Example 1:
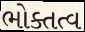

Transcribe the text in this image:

ભોક્તત્વ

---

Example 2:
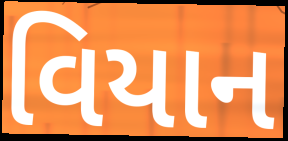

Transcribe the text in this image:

વિયાન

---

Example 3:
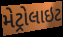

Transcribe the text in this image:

મેટ્રોલાઇટ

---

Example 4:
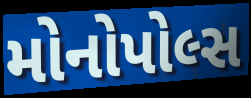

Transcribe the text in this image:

મોનોપોલ્સ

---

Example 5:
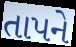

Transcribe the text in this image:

તાપને